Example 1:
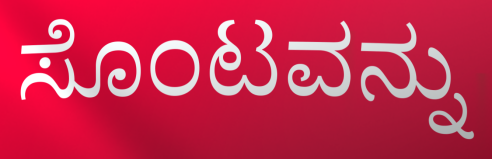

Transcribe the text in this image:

ಸೊಂಟವನ್ನು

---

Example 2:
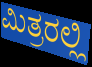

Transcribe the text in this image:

ಮಿತ್ರರಲ್ಲಿ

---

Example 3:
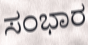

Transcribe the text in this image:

ಸಂಭಾರ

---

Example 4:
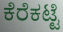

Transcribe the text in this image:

ಕೆರೆಕಟ್ಟೆ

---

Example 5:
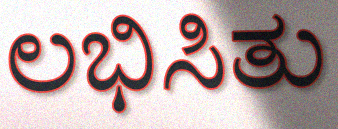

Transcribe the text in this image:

ಲಭಿಸಿತು